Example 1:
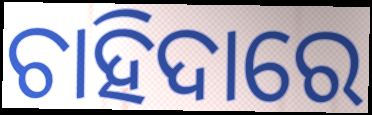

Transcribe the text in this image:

ଚାହିଦାରେ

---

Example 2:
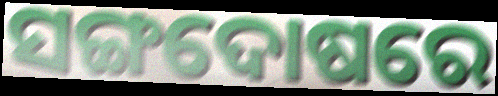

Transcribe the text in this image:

ସଙ୍ଗଦୋଷରେ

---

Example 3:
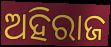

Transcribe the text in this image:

ଅହିରାଜ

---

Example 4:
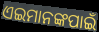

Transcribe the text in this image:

ଏଇମାନଙ୍କପାଇଁ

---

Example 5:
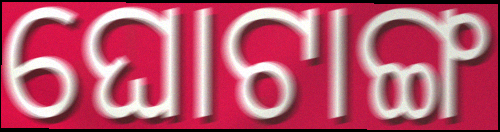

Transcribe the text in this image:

ଘୋଟାଙ୍ଗ